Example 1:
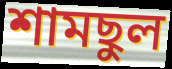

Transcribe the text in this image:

শামছুল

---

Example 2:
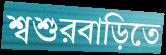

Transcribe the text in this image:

শ্বশুরবাড়িতে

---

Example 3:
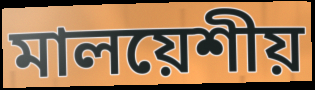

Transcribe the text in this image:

মালয়েশীয়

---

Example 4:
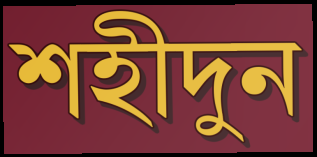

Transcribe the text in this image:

শহীদুন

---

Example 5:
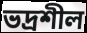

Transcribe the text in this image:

ভদ্রশীল